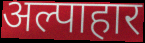
अल्पाहार